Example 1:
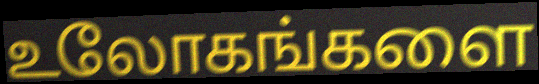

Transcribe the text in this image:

உலோகங்களை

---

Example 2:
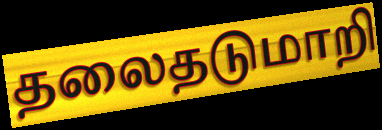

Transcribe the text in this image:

தலைதடுமாறி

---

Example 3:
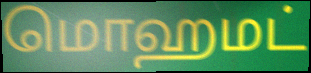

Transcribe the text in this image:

மொஹமட்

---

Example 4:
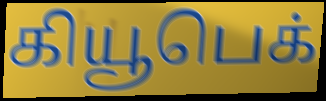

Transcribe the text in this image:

கியூபெக்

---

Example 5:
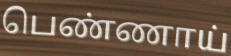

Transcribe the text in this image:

பெண்ணாய்